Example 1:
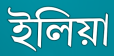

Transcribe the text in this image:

ইলিয়া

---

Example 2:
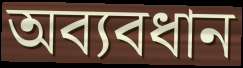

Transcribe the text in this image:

অব্যবধান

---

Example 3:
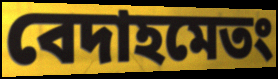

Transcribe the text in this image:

বেদাহমেতং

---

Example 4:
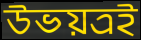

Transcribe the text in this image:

উভয়ত্রই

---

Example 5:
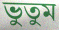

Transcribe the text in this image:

ভুতুম